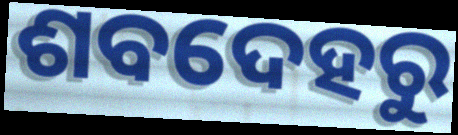
ଶବଦେହରୁ